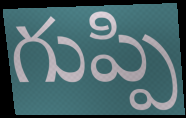
గుప్పి